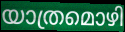
യാത്രമൊഴി